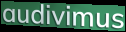
audivimus